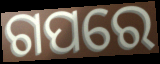
ଗପରେ